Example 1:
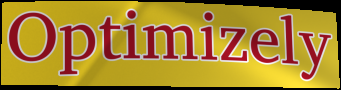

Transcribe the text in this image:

Optimizely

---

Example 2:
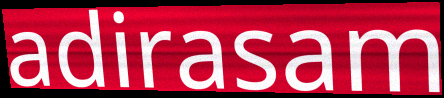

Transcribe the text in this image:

adirasam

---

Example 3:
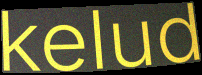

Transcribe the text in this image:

kelud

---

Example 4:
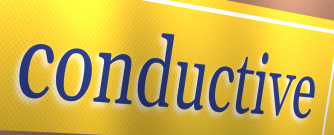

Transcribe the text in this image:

conductive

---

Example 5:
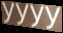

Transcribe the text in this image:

yyyy